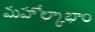
మహోల్కాభాం